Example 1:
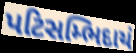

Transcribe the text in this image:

પટિસમ્ભિદાયં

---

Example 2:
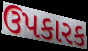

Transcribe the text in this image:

ઉપકારક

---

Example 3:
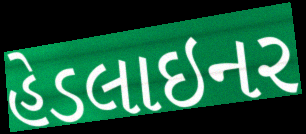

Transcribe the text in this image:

હેડલાઇનર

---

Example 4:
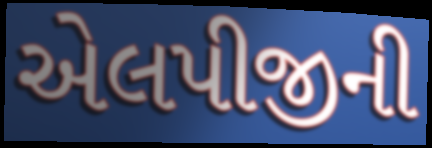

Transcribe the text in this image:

એલપીજીની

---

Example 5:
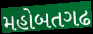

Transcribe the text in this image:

મહોબતગઢ